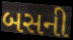
બસની